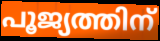
പൂജ്യത്തിന്